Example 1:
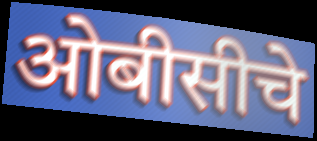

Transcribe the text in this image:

ओबीसीचे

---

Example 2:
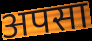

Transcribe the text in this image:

अपसा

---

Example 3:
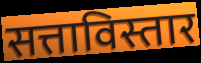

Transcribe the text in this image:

सत्ताविस्तार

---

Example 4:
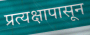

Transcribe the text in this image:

प्रत्यक्षापासून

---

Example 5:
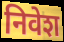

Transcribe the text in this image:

निवेश